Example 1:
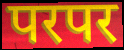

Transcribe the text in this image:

परपर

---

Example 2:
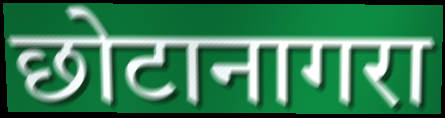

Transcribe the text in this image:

छोटानागरा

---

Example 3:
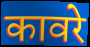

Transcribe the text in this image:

कावरे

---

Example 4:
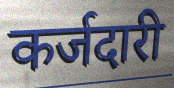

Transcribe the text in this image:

कर्जदारी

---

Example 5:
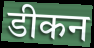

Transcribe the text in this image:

डीकन